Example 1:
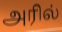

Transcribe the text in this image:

அரில்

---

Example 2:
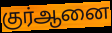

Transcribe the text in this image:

குர்ஆனை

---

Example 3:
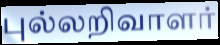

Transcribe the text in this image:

புல்லறிவாளர்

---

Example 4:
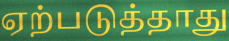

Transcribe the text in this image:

ஏற்படுத்தாது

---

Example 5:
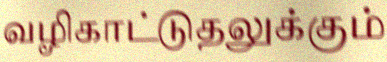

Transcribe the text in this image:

வழிகாட்டுதலுக்கும்